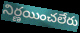
నిర్ణయించలేరు